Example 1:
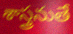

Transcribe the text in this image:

శాస్త్రనుతే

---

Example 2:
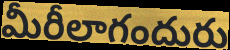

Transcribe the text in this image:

మీరీలాగందురు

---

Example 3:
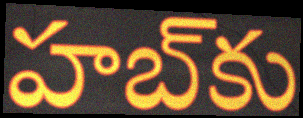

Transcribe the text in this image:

హబ్‌కు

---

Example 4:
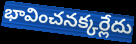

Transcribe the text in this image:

భావించనక్కర్లేదు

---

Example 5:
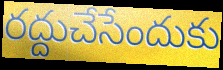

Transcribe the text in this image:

రద్దుచేసేందుకు